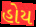
હોય